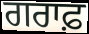
ਗਰਾਫ਼